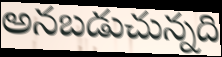
అనబడుచున్నది